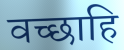
वच्छाहि